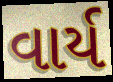
વાર્ય